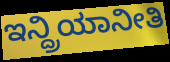
ಇನ್ದ್ರಿಯಾನೀತಿ